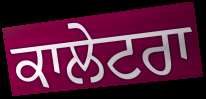
ਕਾਲੇਟਰਾ